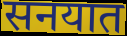
सनयात